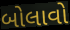
બોલાવો